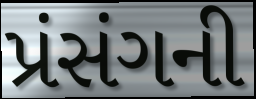
પ્રંસંગની